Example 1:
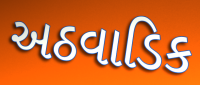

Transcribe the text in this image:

અઠવાડિક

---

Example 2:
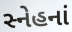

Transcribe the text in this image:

સ્નેહનાં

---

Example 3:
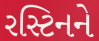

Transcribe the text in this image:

રસ્ટિનને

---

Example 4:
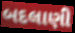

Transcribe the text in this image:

બદલાણી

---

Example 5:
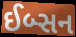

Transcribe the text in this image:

ઈબ્સન